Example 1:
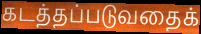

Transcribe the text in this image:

கடத்தப்படுவதைக்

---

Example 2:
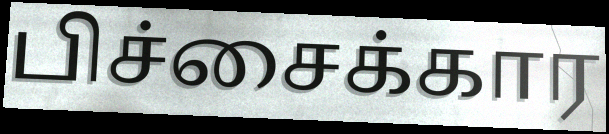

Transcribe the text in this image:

பிச்சைக்கார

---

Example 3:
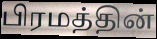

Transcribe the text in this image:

பிரமத்தின்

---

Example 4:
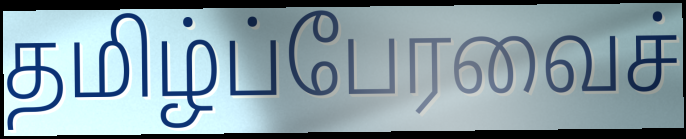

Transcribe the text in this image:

தமிழ்ப்பேரவைச்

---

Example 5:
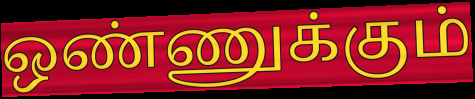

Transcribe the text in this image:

ஒண்ணுக்கும்